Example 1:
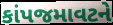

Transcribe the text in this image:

કાંપજમાવટને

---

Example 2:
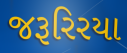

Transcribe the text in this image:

જરૂરિરયા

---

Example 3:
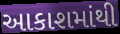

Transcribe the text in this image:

આકાશમાંથી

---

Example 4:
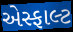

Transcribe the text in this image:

એસ્ફાલ્ટ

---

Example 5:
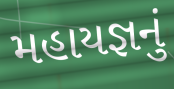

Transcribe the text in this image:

મહાયજ્ઞનું